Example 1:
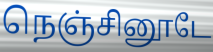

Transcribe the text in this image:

நெஞ்சினூடே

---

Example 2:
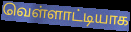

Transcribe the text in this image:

வெள்ளாட்டியாக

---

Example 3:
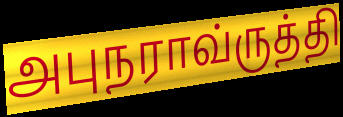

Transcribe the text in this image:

அபுநராவ்ருத்தி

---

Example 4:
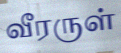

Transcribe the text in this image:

வீரருள்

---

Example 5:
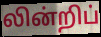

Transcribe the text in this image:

லின்றிப்